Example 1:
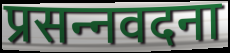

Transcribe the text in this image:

प्रसन्नवदना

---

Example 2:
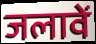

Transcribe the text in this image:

जलावें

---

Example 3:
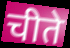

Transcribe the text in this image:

चीते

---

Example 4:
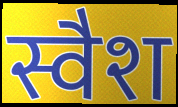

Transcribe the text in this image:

स्वैश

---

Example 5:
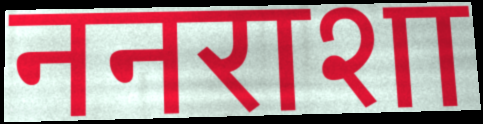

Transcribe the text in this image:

ननराशा